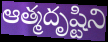
ఆత్మదృష్టిని